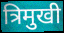
त्रिमुखी